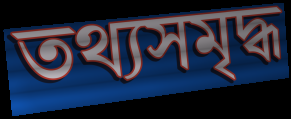
তথ্যসমৃদ্ধ